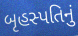
બૃહસ્પતિનું